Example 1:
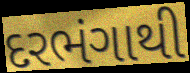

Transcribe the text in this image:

દરભંગાથી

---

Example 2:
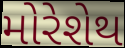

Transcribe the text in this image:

મોરેશેથ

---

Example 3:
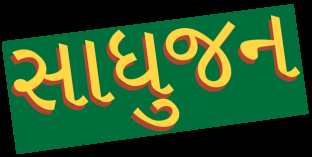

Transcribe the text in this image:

સાધુજન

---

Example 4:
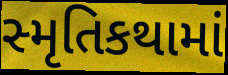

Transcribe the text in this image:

સ્મૃતિકથામાં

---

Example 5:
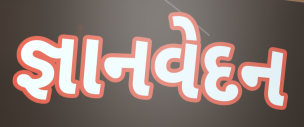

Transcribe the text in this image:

જ્ઞાનવેદન